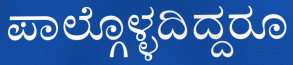
ಪಾಲ್ಗೊಳ್ಳದಿದ್ದರೂ